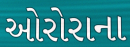
ઓરોરાના